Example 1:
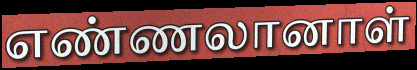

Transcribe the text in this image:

எண்ணலானாள்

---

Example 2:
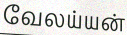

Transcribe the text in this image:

வேலய்யன்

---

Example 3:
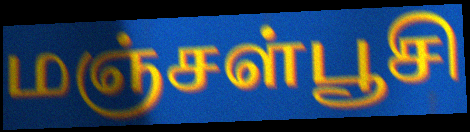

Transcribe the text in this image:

மஞ்சள்பூசி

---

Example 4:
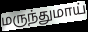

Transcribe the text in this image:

மருந்துமாய்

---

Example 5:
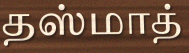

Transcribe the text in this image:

தஸ்மாத்